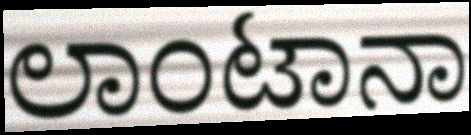
ಲಾಂಟಾನಾ